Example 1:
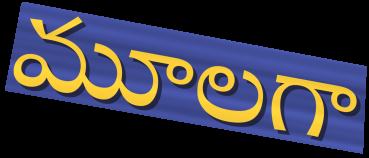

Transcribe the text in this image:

మూలగా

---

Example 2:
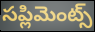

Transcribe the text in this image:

సప్లిమెంట్స్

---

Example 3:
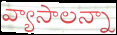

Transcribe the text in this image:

వ్యాసాలన్నా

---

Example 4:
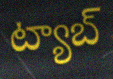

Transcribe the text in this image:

ట్యాబ్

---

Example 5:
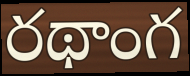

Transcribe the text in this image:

రథాంగ